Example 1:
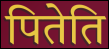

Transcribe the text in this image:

पितेति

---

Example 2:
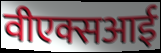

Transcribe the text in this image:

वीएक्सआई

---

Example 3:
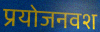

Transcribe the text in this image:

प्रयोजनवश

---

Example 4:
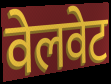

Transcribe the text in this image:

वेलवेट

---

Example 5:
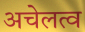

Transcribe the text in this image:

अचेलत्व